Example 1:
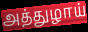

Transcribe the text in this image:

அத்துழாய்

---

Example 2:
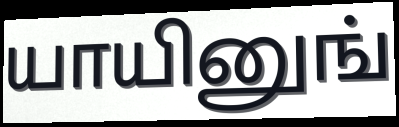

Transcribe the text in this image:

யாயினுங்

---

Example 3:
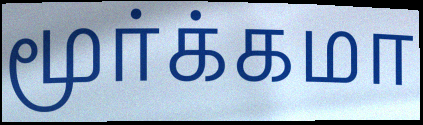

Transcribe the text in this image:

மூர்க்கமா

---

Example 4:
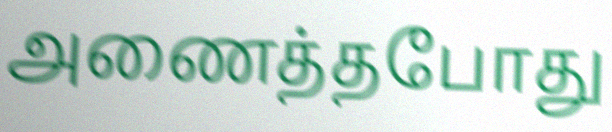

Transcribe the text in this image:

அணைத்தபோது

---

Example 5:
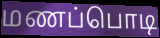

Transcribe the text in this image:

மணப்பொடி